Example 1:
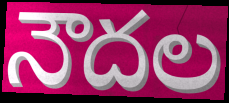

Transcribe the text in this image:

నౌదల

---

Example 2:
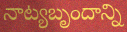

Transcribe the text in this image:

నాట్యబృందాన్ని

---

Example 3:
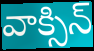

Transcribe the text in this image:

వాక్సిన్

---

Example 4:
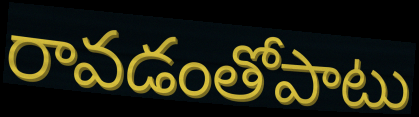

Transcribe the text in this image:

రావడంతోపాటు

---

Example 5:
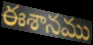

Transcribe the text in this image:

ఈశానము